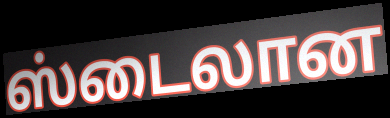
ஸ்டைலான